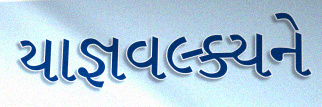
યાજ્ઞવલ્ક્યને